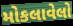
મોકલાવેલો